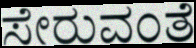
ಸೇರುವಂತೆ